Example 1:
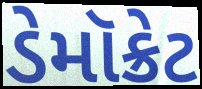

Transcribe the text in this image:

ડેમૉક્રેટ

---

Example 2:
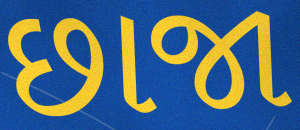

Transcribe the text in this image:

છાજા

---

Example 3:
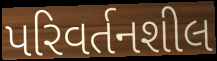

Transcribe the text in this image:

પરિવર્તનશીલ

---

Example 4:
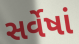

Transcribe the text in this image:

સર્વેષાં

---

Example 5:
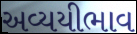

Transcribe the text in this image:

અવ્યયીભાવ